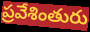
ప్రవేశింతురు